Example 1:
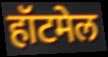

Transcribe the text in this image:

हॉटमेल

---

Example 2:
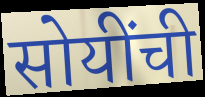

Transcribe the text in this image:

सोयींची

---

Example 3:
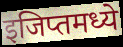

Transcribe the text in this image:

इजिप्तमध्ये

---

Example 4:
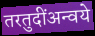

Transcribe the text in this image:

तरतुदींअन्वये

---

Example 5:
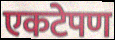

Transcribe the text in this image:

एकटेपण